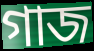
গাজ